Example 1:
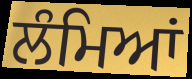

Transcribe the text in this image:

ਲੰਮਿਆਂ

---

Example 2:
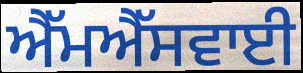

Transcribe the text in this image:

ਐੱਮਐੱਸਵਾਈ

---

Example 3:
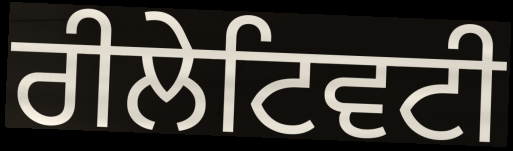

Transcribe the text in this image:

ਰੀਲੇਟਿਵਟੀ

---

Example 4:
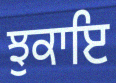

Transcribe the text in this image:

ਝੁਕਾਇ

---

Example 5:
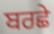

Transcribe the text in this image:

ਬਰਛੇ